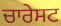
ਚਾਰੇਸਟ